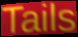
Tails